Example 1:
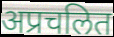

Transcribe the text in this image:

अप्रचलित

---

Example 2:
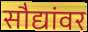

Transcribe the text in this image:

सौद्यांवर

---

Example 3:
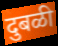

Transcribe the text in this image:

दुबळी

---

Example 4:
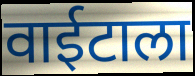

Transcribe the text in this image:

वाईटाला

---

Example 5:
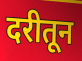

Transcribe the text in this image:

दरीतून